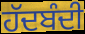
ਹੱਦਬੰਦੀ